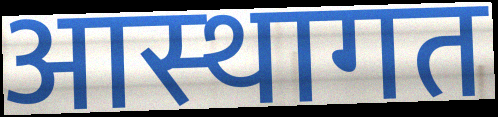
आस्थागत